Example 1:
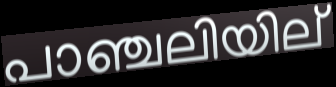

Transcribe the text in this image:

പാഞ്ചലിയില്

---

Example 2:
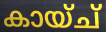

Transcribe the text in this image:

കായ്ച്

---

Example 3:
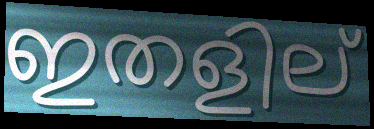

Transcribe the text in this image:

ഇതളില്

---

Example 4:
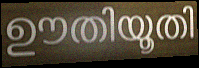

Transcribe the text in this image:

ഊതിയൂതി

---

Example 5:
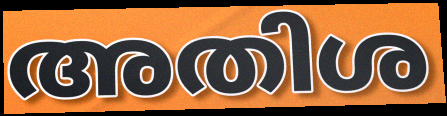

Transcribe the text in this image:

അതിശ